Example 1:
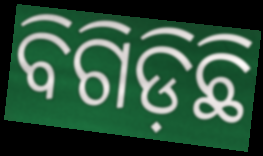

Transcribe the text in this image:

ବିଗିଡ଼ିଛି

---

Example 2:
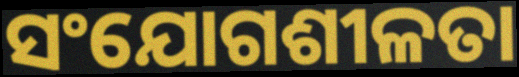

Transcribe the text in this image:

ସଂଯୋଗଶୀଳତା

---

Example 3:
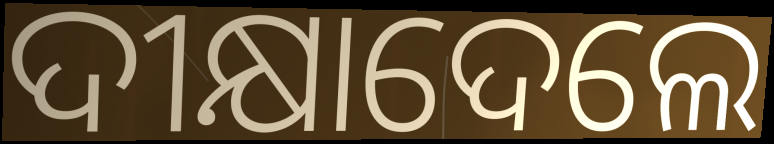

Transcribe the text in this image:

ଦୀକ୍ଷାଦେଲେ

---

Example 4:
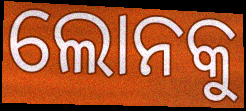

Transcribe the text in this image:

ଲୋନକୁ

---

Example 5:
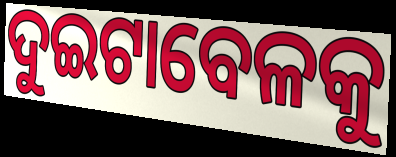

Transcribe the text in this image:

ଦୁଇଟାବେଳକୁ